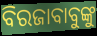
ବିରଜାବାବୁଙ୍କୁ